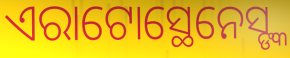
ଏରାଟୋସ୍ଥେନେସ୍ଙ୍କ